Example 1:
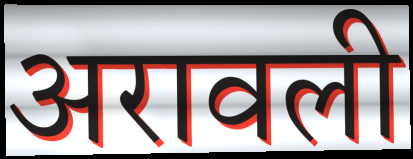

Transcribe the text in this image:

अरावली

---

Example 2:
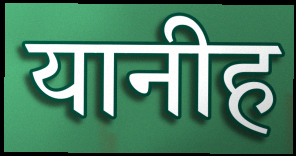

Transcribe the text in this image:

यानीह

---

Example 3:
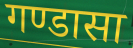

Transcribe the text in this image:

गण्डासा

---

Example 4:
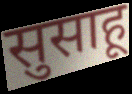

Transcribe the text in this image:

सुसाहू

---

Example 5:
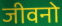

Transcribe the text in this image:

जीवनो